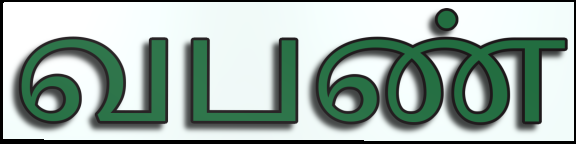
வபண்